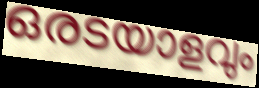
ഒരടയാളവും